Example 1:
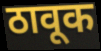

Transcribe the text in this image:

ठावूक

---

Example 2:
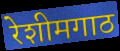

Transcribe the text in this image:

रेशीमगाठ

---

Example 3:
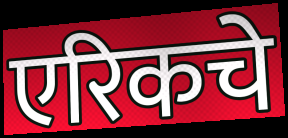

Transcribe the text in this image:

एरिकचे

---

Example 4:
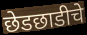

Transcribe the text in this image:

छेडछाडीचे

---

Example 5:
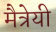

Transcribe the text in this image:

मैत्रेयी